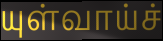
யுள்வாய்ச்